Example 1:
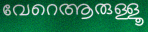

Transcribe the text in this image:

വേറെആരുള്ളൂ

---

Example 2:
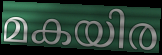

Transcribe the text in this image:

മകയിര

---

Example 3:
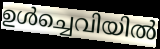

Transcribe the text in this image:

ഉൾച്ചെവിയിൽ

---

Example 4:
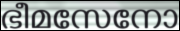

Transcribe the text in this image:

ഭീമസേനോ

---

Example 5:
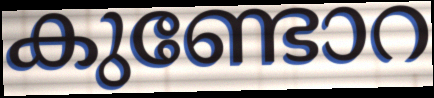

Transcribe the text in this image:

കുണ്ടോറ